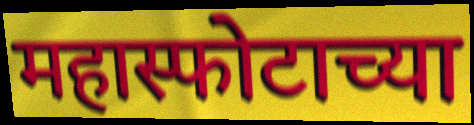
महास्फोटाच्या